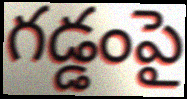
గడ్డంపై